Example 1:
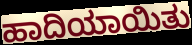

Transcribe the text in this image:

ಹಾದಿಯಾಯಿತು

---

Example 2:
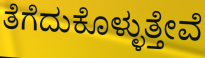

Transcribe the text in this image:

ತೆಗೆದುಕೊಳ್ಳುತ್ತೇವೆ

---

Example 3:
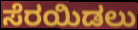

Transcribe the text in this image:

ಸೆರಯಿಡಲು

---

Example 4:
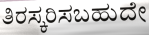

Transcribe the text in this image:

ತಿರಸ್ಕರಿಸಬಹುದೇ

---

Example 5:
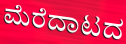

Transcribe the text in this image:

ಮೆರೆದಾಟದ